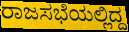
ರಾಜಸಭೆಯಲ್ಲಿದ್ದ